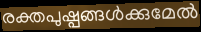
രക്തപുഷ്പങ്ങൾക്കുമേൽ